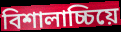
বিশালাচ্চিয়ে